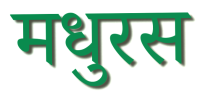
मधुरस